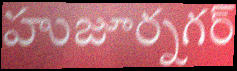
హుజూర్నగర్